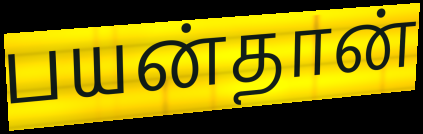
பயன்தான்